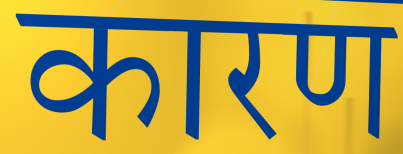
कारण